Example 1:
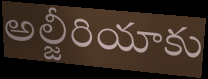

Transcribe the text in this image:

అల్జీరియాకు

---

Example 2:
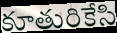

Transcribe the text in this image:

కూతురికేసి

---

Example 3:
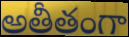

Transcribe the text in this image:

అతీతంగా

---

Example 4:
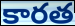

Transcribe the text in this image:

కారత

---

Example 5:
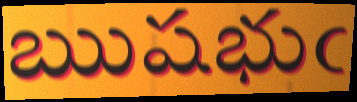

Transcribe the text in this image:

ఋషభుఁ